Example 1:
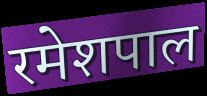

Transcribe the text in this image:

रमेशपाल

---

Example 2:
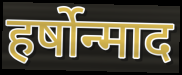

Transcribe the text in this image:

हर्षोन्माद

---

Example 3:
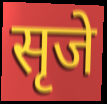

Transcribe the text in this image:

सृजे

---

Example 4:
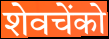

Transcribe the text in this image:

शेवचेंको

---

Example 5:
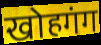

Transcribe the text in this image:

खोहगंग